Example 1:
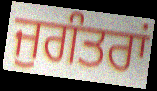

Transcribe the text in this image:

ਜੁਗੰਤਰਾਂ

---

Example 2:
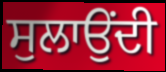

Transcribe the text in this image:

ਸੁਲਾਉਂਦੀ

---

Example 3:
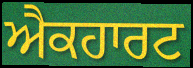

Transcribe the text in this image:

ਐਕਹਾਰਟ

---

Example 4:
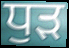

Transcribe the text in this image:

ਧੁੜ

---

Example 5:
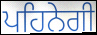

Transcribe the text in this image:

ਪਹਿਨੇਗੀ